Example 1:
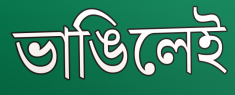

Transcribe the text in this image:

ভাঙিলেই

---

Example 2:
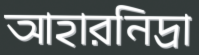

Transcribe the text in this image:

আহারনিদ্রা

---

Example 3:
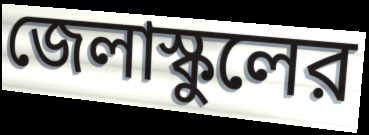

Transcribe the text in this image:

জেলাস্কুলের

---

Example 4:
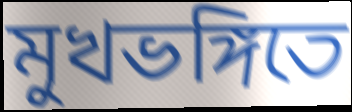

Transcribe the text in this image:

মুখভঙ্গিতে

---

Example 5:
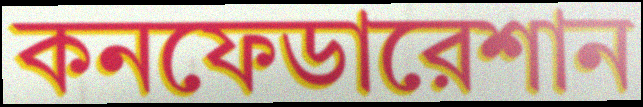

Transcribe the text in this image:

কনফেডারেশান